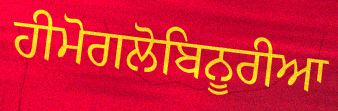
ਹੀਮੋਗਲੋਬਿਨੂਰੀਆ